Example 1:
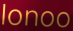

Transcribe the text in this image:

lonoo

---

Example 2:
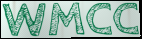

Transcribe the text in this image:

WMCC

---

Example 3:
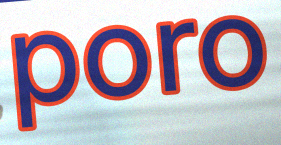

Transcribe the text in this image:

poro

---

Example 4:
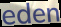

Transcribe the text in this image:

eden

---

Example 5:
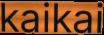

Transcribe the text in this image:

kaikai